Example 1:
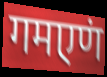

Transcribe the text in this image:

गमएणं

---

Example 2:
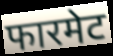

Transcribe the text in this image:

फारमेट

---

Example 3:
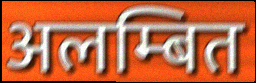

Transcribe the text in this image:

अलम्बित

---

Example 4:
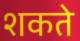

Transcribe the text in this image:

शकते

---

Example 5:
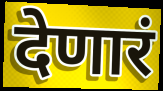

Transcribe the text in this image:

देणारं